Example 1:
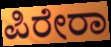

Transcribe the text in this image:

ಪಿರೇರಾ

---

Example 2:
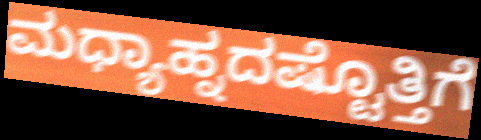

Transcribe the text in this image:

ಮಧ್ಯಾಹ್ನದಷ್ಟೊತ್ತಿಗೆ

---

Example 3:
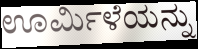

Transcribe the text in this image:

ಊರ್ಮಿಳೆಯನ್ನು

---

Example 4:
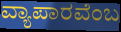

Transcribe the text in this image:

ವ್ಯಾಪಾರವೆಂಬ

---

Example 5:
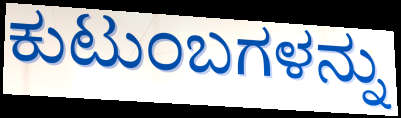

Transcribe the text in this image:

ಕುಟುಂಬಗಳನ್ನು